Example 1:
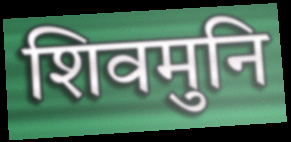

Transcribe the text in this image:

शिवमुनि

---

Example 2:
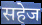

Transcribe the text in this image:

सहेज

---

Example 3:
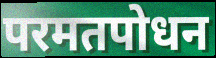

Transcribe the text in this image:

परमतपोधन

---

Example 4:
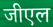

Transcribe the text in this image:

जीएल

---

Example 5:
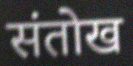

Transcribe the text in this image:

संतोख